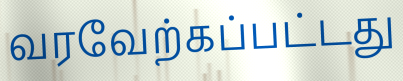
வரவேற்கப்பட்டது